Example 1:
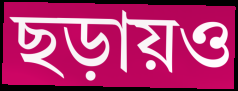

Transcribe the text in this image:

ছড়ায়ও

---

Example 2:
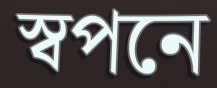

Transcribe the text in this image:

স্বপনে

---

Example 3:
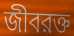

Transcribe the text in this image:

জীবরক্ত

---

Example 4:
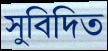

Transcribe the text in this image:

সুবিদিত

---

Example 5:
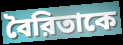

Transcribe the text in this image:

বৈরিতাকে